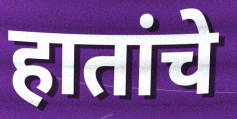
हातांचे